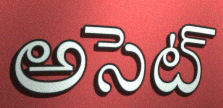
అసెట్